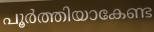
പൂർത്തിയാകേണ്ട